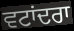
ਵਟਾਂਦਰਾ